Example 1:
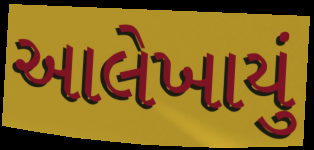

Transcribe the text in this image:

આલેખાયું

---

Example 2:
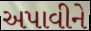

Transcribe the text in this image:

અપાવીને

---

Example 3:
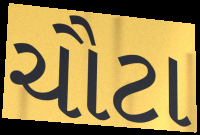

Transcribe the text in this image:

ચૌટા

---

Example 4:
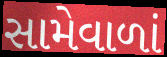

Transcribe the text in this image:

સામેવાળાં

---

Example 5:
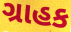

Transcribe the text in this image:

ગ્રાહક